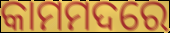
କାମମଦରେ